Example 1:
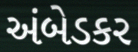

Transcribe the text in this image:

અંબેડકર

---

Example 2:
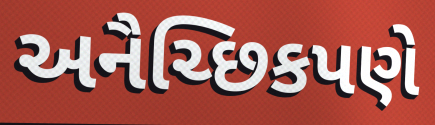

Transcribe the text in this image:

અનૈચ્છિકપણે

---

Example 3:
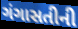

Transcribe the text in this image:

ગંગાસતીની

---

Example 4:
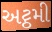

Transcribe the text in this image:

અટ્ઠમી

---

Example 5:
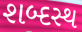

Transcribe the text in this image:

શબ્દસ્થ